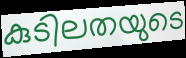
കുടിലതയുടെ